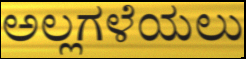
ಅಲ್ಲಗಳೆಯಲು